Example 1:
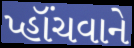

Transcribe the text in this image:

પ્હૉંચવાને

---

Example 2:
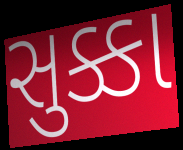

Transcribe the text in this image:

સુક્કા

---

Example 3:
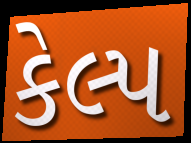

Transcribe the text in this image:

કેલ્પ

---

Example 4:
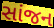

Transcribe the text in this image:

સાંજન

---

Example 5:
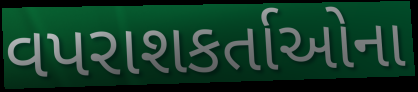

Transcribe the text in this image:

વપરાશકર્તાઓના